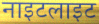
नाइटलाइट